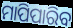
ମାପିପାରିବ